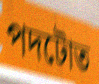
পদটোত